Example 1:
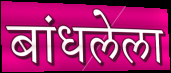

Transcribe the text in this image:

बांधलेला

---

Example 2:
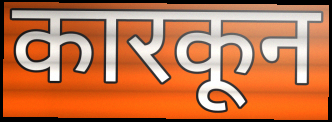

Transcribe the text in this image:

कारकून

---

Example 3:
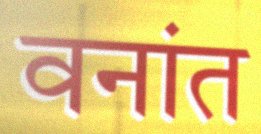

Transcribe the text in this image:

वनांत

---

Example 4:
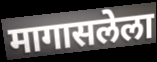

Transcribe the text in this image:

मागासलेला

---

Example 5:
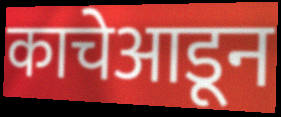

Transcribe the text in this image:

काचेआडून